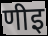
णीइ